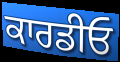
ਕਾਰਡੀਓ